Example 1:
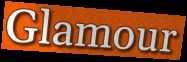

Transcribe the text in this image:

Glamour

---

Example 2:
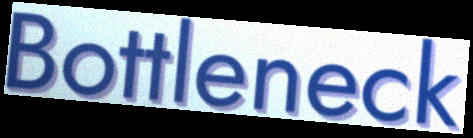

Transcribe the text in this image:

Bottleneck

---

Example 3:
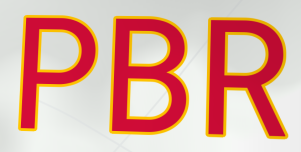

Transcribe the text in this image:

PBR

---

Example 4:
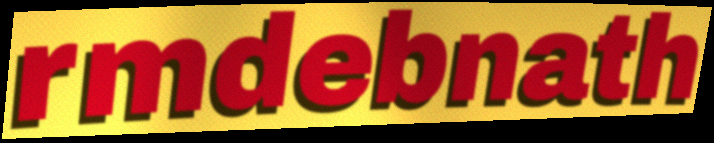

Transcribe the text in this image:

rmdebnath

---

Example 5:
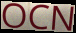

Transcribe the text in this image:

OCN